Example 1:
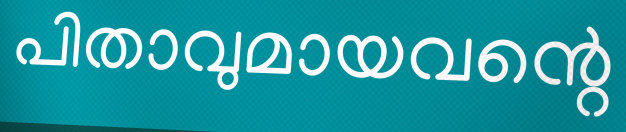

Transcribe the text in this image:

പിതാവുമായവന്റെ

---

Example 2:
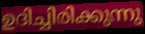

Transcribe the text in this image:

ഉദിച്ചിരിക്കുന്നു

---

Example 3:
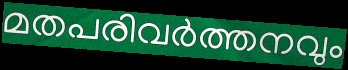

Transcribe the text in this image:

മതപരിവർത്തനവും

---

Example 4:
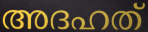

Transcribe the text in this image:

അദഹത്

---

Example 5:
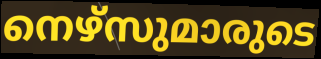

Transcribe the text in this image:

നെഴ്സുമാരുടെ